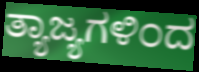
ತ್ಯಾಜ್ಯಗಳಿಂದ